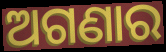
ଅଗଣାର